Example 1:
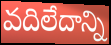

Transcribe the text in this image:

వదిలేదాన్ని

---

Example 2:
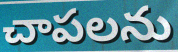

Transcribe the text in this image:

చాపలను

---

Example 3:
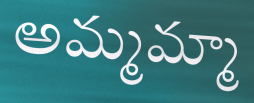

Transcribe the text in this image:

అమ్మమ్మా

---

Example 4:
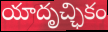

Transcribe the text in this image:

యాదృచ్ఛికం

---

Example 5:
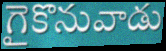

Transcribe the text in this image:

గైకొనువాడు